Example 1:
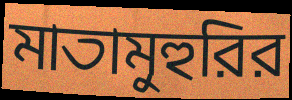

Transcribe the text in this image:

মাতামুহুরির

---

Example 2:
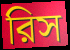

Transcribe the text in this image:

রিস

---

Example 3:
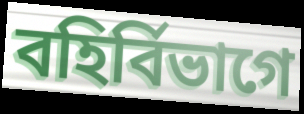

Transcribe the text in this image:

বহির্বিভাগে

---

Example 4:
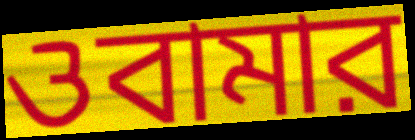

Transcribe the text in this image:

ওবামার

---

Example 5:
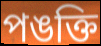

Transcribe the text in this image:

পঙক্তি